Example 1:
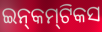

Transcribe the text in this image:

ଇନ୍‍କମ୍‍ଟିକସ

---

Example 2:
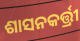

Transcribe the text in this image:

ଶାସନକର୍ତ୍ତ୍ରୀ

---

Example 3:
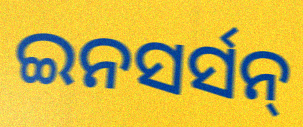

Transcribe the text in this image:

ଇନସର୍ସନ୍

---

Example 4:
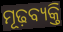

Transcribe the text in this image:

ମୂଢ଼ବ୍ୟକ୍ତି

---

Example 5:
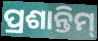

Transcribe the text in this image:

ପ୍ରଶାନ୍ତିମ୍